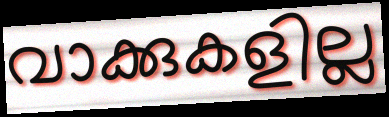
വാക്കുകളില്ല